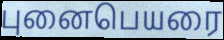
புனைபெயரை